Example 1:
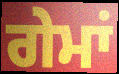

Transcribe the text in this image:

ਗੇਮਾਂ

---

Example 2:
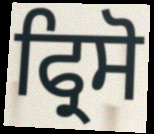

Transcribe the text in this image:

ਫ੍ਰਿਸੋ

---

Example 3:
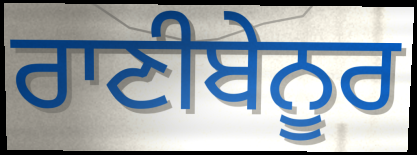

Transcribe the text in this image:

ਰਾਣੀਬੇਨੂਰ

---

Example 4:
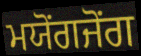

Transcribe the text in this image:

ਮਯੋਂਗਜੋਂਗ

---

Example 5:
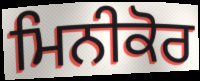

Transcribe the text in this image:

ਮਿਨੀਕੋਰ